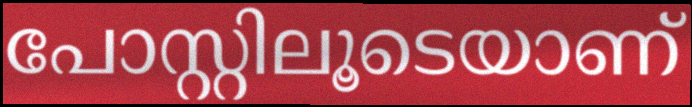
പോസ്റ്റിലൂടെയാണ്